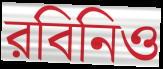
রবিনিও